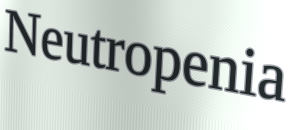
Neutropenia